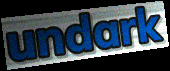
undark